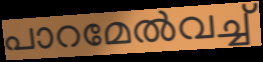
പാറമേൽവച്ച്